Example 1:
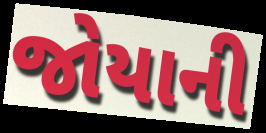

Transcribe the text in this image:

જોયાની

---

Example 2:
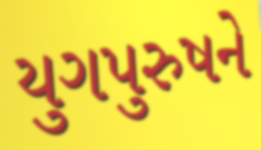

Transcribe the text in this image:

યુગપુરુષને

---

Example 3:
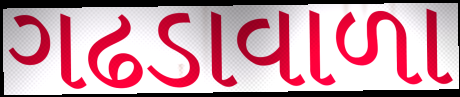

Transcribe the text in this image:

ગઢડાવાળા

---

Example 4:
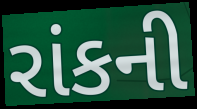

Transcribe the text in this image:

રાંકની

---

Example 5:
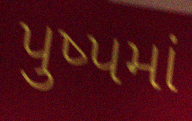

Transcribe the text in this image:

પુષ્પમાં